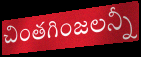
చింతగింజలన్నీ